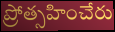
ప్రోత్సహించేరు